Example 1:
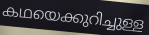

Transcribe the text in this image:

കഥയെക്കുറിച്ചുള്ള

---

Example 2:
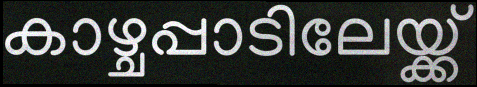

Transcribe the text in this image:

കാഴ്ചപ്പാടിലേയ്ക്ക്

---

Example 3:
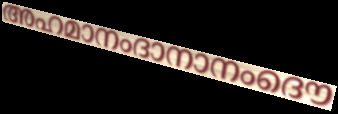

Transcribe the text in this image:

അഹമാനംദാനാനംദൌ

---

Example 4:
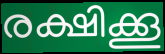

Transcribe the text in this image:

രക്ഷിക്കൂ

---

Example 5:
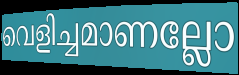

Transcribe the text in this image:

വെളിച്ചമാണല്ലോ